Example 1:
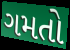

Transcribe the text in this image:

ગમતો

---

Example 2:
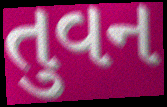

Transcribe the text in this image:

તુવન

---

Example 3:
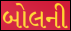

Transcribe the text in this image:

બોલની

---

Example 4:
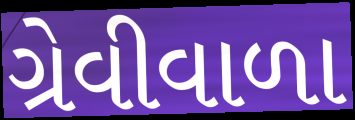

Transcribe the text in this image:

ગ્રેવીવાળા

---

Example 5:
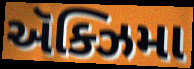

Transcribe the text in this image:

ઍક્ઝિમા